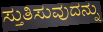
ಸ್ತುತಿಸುವುದನ್ನು